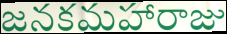
జనకమహారాజు